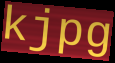
kjpg